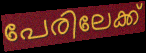
പേരിലേക്ക്